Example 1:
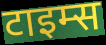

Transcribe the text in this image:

टाइम्स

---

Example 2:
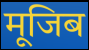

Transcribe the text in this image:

मूजिब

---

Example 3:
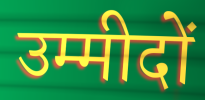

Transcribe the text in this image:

उम्मीदों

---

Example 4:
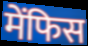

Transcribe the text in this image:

मेंफिस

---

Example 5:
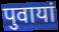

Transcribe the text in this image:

पुवायां